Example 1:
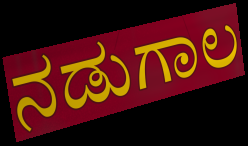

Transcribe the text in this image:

ನಡುಗಾಲ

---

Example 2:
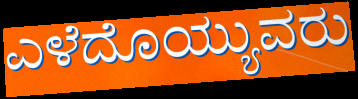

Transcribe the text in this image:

ಎಳೆದೊಯ್ಯುವರು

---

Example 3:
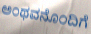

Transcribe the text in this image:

ಅಂಥವನೊಂದಿಗೆ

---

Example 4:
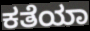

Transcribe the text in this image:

ಕತೆಯಾ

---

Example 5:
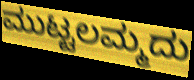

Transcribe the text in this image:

ಮುಟ್ಟಲಮ್ಮದು